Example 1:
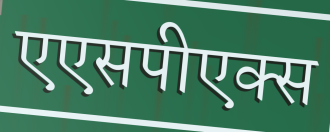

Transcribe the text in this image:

एएसपीएक्स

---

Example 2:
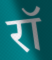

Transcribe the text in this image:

रॉ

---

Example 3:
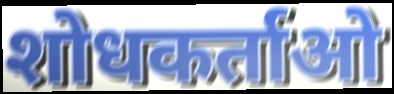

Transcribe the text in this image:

शोधकर्ताओ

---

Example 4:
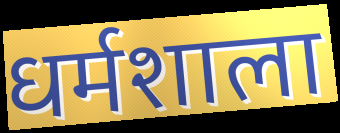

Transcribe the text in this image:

धर्मशाला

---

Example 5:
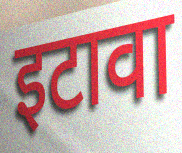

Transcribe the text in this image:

इटावा